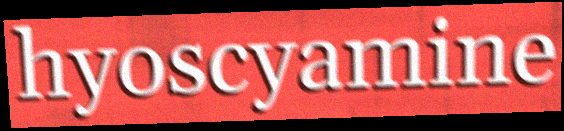
hyoscyamine